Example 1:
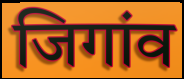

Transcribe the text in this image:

जिगांव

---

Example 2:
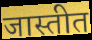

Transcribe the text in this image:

जास्तीत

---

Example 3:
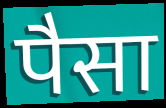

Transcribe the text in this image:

पैसा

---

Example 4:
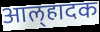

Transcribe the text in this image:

आल्हादक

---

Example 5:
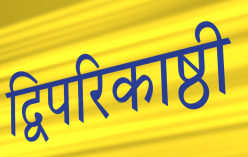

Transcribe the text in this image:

द्विपरिकाष्ठी